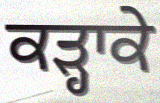
ਕੜ੍ਹਾਕੇ